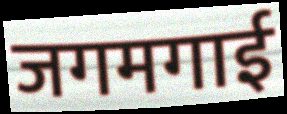
जगमगाई